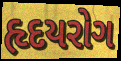
હૃદયરોગ